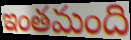
ఇంతమంది